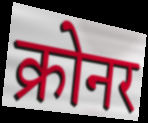
क्रोनर